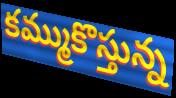
కమ్ముకొస్తున్న